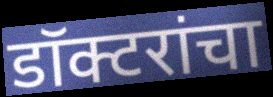
डॉक्टरांचा